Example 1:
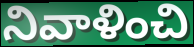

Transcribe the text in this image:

నివాళించి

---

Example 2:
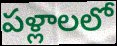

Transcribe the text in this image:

పళ్లాలలో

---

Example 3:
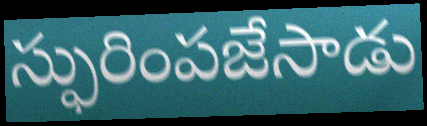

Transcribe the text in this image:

స్ఫురింపజేసాడు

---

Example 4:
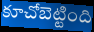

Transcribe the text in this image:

కూచోబెట్టింది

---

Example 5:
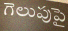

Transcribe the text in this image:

గెలుపుపై